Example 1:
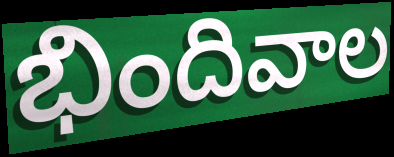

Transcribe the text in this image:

భిందివాల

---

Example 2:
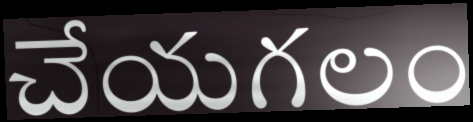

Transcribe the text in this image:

చేయగలం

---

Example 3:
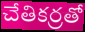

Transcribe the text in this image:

చేతికర్రతో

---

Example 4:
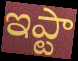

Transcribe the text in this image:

ఇప్టా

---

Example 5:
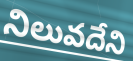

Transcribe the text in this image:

నిలువదేని